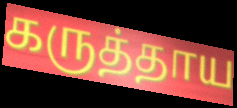
கருத்தாய